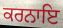
ਕਰਨਾਇ